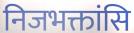
निजभक्तांसि